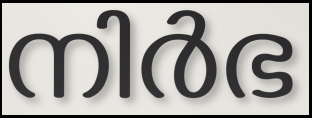
നിർഭ